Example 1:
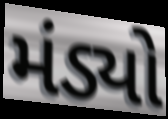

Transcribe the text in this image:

મંડ્યો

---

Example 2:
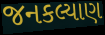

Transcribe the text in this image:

જનકલ્યાણ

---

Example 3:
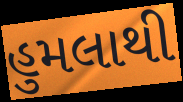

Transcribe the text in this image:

હુમલાથી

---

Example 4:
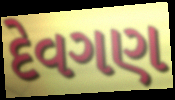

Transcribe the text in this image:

દેવગણ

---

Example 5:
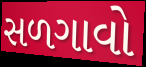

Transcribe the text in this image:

સળગાવો